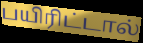
பயிரிட்டால்